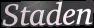
Staden